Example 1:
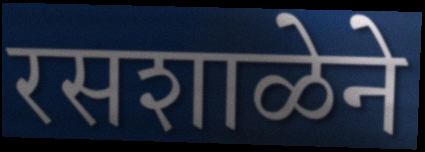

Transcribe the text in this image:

रसशाळेने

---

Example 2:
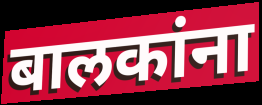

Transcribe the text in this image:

बालकांना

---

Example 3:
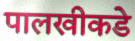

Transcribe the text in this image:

पालखीकडे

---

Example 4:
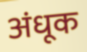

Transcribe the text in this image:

अंधूक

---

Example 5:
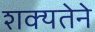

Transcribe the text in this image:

शक्यतेने